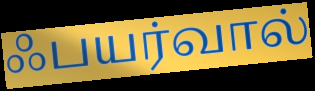
ஃபயர்வால்